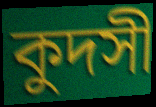
কুদসী